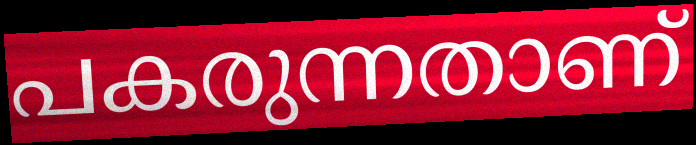
പകരുന്നതാണ്